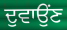
ਦੁਵਾਉਂਣ